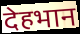
देहभान